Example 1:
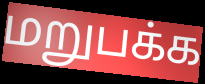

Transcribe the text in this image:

மறுபக்க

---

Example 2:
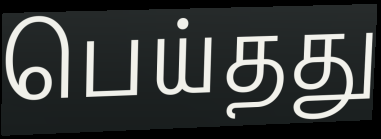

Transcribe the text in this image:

பெய்தது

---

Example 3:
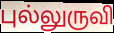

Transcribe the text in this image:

புல்லுருவி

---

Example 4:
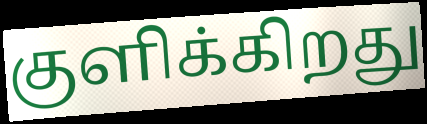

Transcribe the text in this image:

குளிக்கிறது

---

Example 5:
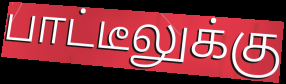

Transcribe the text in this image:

பாட்டீலுக்கு